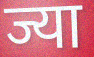
ज्या